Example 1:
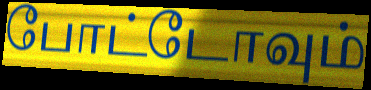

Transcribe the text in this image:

போட்டோவும்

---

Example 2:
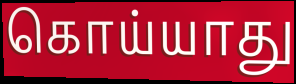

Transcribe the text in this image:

கொய்யாது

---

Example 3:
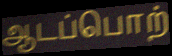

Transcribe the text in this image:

ஆடப்பொற்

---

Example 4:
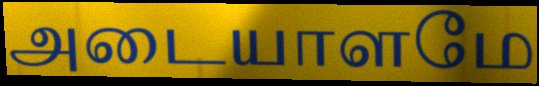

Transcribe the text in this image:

அடையாளமே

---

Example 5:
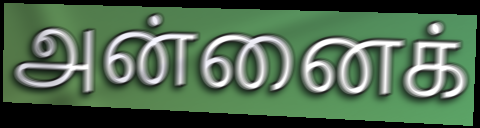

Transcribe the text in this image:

அன்னைக்